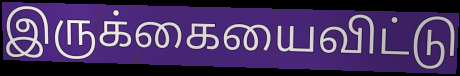
இருக்கையைவிட்டு